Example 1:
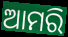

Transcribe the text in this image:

ଆମରି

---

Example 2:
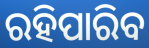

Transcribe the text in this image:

ରହିପାରିବ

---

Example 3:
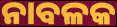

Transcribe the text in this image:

ନାବଳକ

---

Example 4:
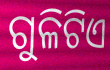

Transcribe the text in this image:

ଗୁଳିଟିଏ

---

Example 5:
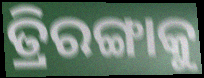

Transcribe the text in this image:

ତ୍ରିରଙ୍ଗାକୁ